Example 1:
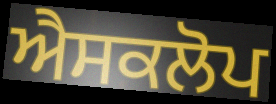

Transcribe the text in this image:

ਐਸਕਲੋਪ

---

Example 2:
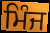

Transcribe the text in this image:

ਮਿੰਜ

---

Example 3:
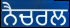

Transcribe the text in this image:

ਨੈਚਰਲ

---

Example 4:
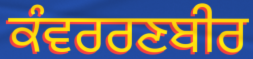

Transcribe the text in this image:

ਕੰਵਰਰਣਬੀਰ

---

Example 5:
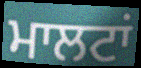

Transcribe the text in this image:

ਮਾਲਟਾਂ